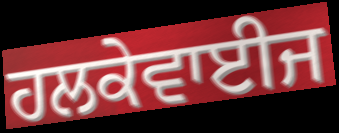
ਹਲਕੇਵਾਈਜ